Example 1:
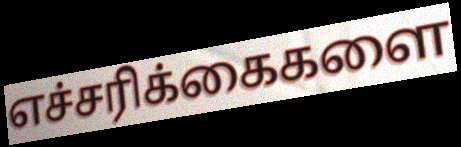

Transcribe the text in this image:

எச்சரிக்கைகளை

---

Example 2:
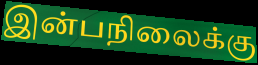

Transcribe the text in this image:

இன்பநிலைக்கு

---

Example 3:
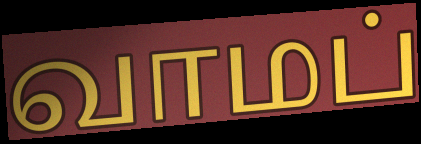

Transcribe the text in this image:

வாமப்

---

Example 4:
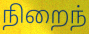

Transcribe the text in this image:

நிறைந்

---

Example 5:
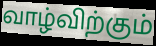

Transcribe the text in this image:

வாழ்விற்கும்